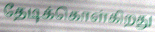
தேடிக்கொள்கிறது